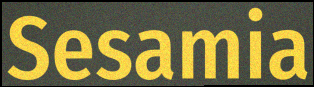
Sesamia